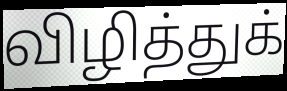
விழித்துக்